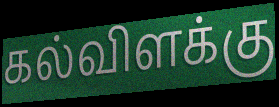
கல்விளக்கு